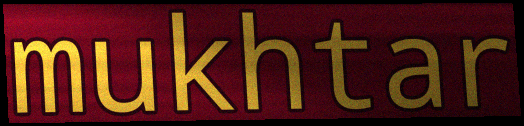
mukhtar